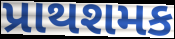
પ્રાથશમક